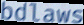
bdlaws